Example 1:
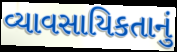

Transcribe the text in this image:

વ્યાવસાયિકતાનું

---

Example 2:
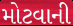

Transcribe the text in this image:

મોટવાની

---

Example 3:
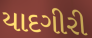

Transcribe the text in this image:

યાદગીરી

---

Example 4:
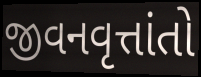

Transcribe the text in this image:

જીવનવૃત્તાંતો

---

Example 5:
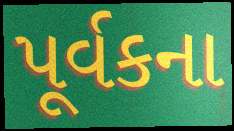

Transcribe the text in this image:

પૂર્વકના